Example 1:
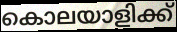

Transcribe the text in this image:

കൊലയാളിക്ക്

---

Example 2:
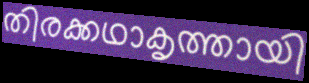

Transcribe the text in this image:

തിരക്കഥാകൃത്തായി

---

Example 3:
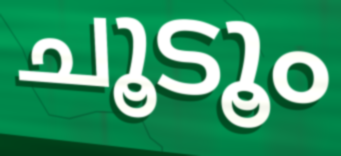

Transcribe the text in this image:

ചൂടൂം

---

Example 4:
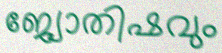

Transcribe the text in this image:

ജ്യോതിഷവും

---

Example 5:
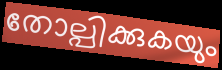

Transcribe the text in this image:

തോല്പിക്കുകയും